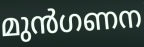
മുൻഗണന